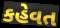
કહેવત